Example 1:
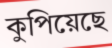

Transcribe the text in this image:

কুপিয়েছে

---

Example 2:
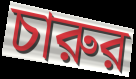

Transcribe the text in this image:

চারুর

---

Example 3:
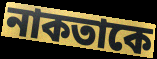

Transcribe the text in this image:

নাকতাকে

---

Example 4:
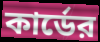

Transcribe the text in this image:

কার্ডের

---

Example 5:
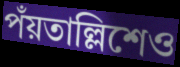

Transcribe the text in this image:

পঁয়তাল্লিশেও